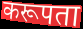
करूपता